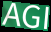
AGI